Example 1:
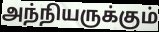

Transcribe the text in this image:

அந்நியருக்கும்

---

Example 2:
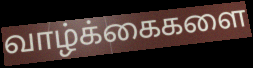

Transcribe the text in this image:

வாழ்க்கைகளை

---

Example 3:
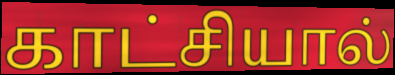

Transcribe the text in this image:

காட்சியால்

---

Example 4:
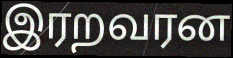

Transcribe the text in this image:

இரறவரன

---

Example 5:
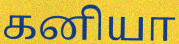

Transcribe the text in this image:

கனியா